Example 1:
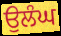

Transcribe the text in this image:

ਉਲੰਘ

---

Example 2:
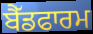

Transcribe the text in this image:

ਬੈੱਡਫਾਰਮ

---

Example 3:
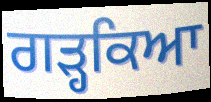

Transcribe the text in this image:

ਗੜ੍ਹਕਿਆ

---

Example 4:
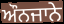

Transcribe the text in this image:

ਔਨਜਾਨੇ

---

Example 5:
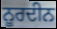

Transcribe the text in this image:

ਨੂਰਦੀਨ